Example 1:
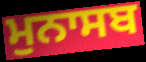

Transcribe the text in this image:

ਮੁਨਾਸਬ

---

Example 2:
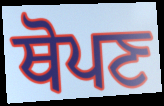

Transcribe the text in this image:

ਥੋਪਣ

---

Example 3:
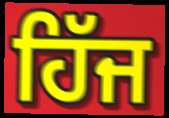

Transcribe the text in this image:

ਹਿੱਜ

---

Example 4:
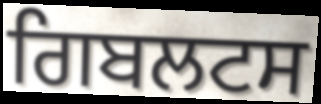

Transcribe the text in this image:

ਗਿਬਲਟਸ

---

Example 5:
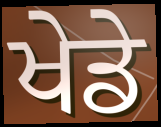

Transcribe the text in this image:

ਖੇਡੇ